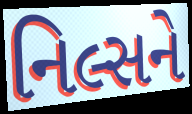
નિલ્સને